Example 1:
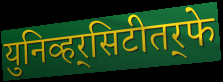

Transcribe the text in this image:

युनिव्हर्सिटीतर्फे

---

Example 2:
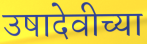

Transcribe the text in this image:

उषादेवीच्या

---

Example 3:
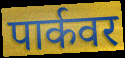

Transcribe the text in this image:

पार्कवर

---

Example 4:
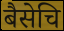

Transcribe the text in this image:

बैसेचि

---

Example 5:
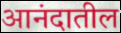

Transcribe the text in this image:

आनंदातील